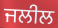
ਜਲੀਲ